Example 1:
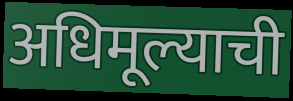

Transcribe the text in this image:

अधिमूल्याची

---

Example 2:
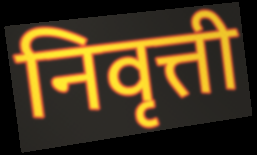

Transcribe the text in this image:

निवृत्ती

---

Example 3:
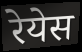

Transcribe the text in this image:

रेयेस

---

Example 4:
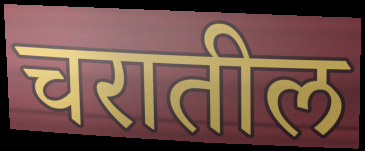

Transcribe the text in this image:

चरातील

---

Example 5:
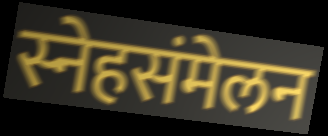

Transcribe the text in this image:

स्नेहसंमेलन